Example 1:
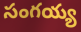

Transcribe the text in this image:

సంగయ్య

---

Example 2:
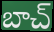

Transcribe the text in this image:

బాచ్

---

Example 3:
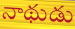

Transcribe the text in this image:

నాథుడు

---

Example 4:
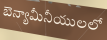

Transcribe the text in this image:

బెన్యామీనీయులలో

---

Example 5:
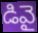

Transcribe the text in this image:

డివై